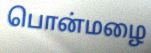
பொன்மழை